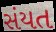
સંયત